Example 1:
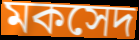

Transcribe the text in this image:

মকসেদ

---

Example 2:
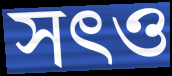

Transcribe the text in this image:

সৎও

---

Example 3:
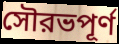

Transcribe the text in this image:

সৌরভপূর্ণ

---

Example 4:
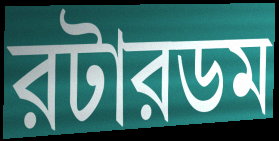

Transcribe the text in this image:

রটারডম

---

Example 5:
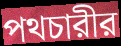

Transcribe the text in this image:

পথচারীর